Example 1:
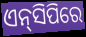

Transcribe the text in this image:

ଏନ୍‌ସିପିରେ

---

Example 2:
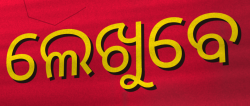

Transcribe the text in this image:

ଲେଖୁବେ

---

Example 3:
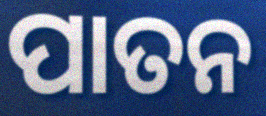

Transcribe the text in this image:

ପାତନ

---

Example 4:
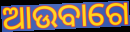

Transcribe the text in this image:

ଆଉବାଗେ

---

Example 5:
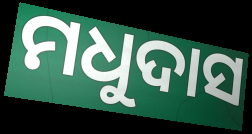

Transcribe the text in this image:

ମଧୁଦାସ